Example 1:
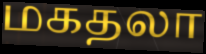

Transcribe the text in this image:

மகதலா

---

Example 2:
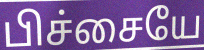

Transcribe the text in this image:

பிச்சையே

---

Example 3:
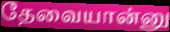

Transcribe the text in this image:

தேவையான்னு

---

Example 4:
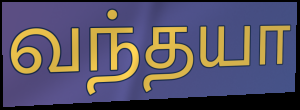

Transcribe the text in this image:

வந்தயா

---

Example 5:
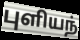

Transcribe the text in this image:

புளியந்